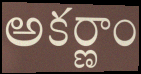
అకర్ణాం